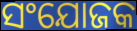
ସଂଯୋଜକ